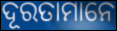
ଦୂରତାମାନେ